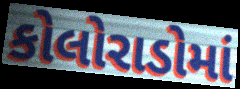
કોલોરાડોમાં